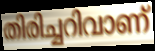
തിരിച്ചറിവാണ്